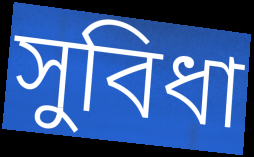
সুবিধা